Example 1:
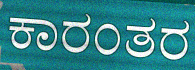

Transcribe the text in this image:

ಕಾರಂತರ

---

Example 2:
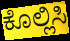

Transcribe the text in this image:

ಕೊಲ್ಲಿಸಿ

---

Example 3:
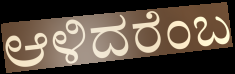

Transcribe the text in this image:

ಆಳಿದರೆಂಬ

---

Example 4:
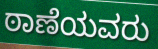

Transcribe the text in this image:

ಠಾಣೆಯವರು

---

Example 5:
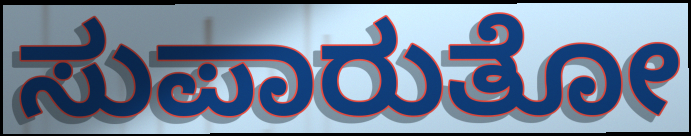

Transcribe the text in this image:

ಸುಪಾರುತೋ